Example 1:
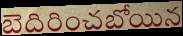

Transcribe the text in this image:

బెదిరించబోయిన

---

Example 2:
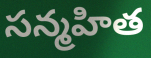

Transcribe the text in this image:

సన్మహిత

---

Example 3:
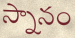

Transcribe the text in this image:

స్నానం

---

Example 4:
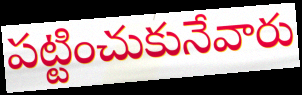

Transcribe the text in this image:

పట్టించుకునేవారు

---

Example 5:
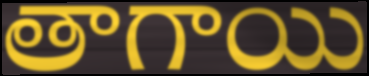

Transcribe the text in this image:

తాగాయి